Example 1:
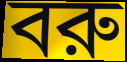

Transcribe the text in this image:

বরু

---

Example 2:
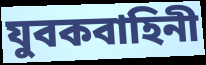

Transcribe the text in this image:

যুবকবাহিনী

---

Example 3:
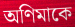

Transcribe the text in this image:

অণিমাকে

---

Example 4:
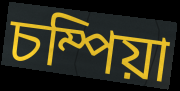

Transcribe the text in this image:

চম্পিয়া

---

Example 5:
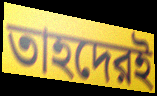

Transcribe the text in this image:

তাহদেরই